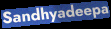
Sandhyadeepa